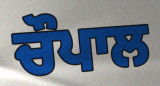
ਚੌਪਾਲ